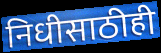
निधीसाठीही